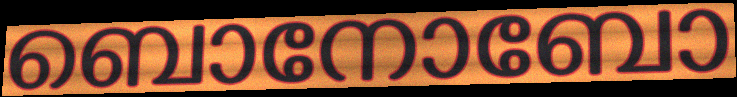
ബൊനോബോ